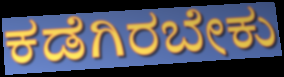
ಕಡೆಗಿರಬೇಕು